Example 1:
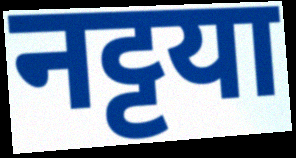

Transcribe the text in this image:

नट्टया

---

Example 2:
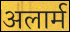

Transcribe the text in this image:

अलार्म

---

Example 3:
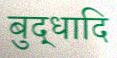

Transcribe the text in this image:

बुद्धादि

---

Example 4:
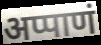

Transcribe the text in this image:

अप्पाणं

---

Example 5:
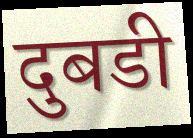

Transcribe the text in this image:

दुबडी